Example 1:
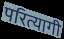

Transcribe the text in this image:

परित्यागी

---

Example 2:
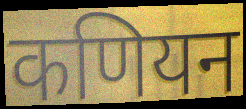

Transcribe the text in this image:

कणियन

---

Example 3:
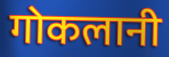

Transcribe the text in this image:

गोकलानी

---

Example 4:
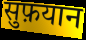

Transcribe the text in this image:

सुफ़यान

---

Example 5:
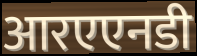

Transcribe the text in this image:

आरएएनडी